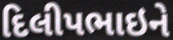
દિલીપભાઇને